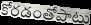
కోరడంతోపాటు